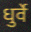
धुर्वे